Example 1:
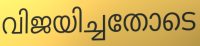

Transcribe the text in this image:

വിജയിച്ചതോടെ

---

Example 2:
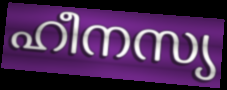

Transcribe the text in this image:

ഹീനസ്യ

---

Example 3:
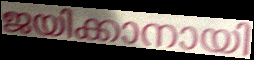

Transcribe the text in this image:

ജയിക്കാനായി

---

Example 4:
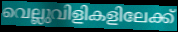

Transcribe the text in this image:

വെല്ലുവിളികളിലേക്ക്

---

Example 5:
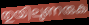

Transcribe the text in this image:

തുയിലുണരുക